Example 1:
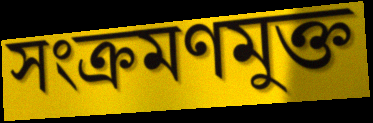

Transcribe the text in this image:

সংক্রমণমুক্ত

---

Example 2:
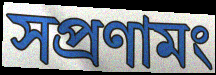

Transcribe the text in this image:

সপ্রণামং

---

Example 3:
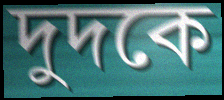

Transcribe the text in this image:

দুদকে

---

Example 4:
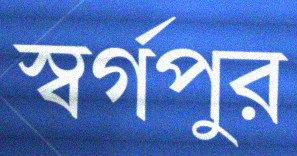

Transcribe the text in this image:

স্বর্গপুর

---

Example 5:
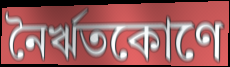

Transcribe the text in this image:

নৈর্ঋতকোণে